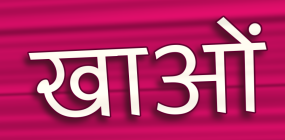
खाओं